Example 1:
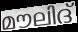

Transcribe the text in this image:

മൗലിദ്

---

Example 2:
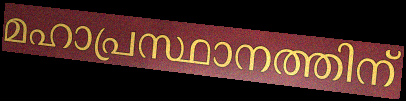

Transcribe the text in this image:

മഹാപ്രസ്ഥാനത്തിന്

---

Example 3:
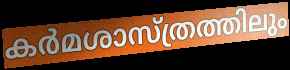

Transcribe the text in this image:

കർമശാസ്ത്രത്തിലും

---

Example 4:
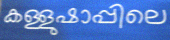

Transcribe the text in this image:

കള്ളുഷാപ്പിലെ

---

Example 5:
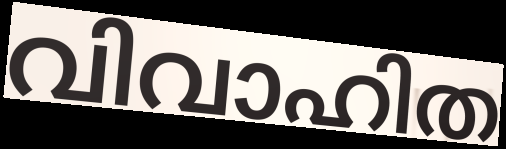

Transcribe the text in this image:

വിവാഹിത